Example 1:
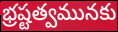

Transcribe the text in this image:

భ్రష్టత్వమునకు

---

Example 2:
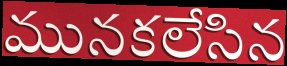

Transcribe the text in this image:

మునకలేసిన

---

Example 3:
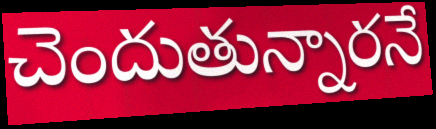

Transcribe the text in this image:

చెందుతున్నారనే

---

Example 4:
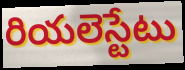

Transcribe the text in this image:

రియలెస్టేటు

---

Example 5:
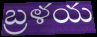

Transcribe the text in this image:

బ్రళయ